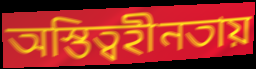
অস্তিত্বহীনতায়